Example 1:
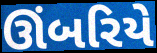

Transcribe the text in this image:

ઊંબરિયે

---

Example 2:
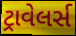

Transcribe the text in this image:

ટ્રાવેલર્સ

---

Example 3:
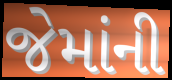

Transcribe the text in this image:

જેમાંની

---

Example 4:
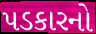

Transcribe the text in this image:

પડકારનો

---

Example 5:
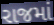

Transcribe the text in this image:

રાજમાં